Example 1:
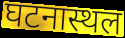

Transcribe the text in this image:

घटनास्थल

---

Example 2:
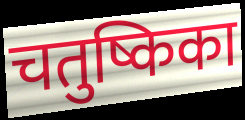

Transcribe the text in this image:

चतुष्किका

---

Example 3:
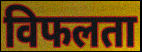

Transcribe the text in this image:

विफलता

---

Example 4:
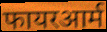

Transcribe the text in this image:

फायरआर्म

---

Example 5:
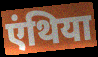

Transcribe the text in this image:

एंथिया